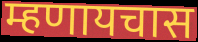
म्हणायचास